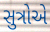
સુત્રોએ